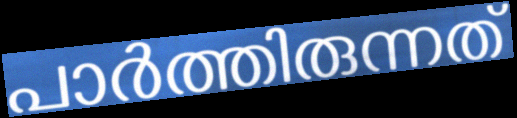
പാർത്തിരുന്നത്